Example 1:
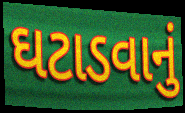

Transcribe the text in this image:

ઘટાડવાનું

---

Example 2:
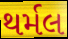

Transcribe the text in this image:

થર્મલ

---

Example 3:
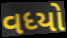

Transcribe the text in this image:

વધ્યો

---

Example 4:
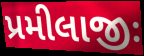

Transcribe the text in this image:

પ્રમીલાજીઃ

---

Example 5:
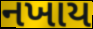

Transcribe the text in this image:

નખાય